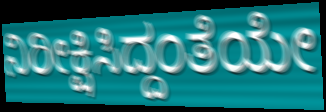
ನಿರೀಕ್ಷಿಸಿದ್ದಂತೆಯೇ